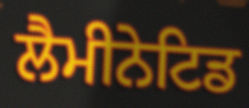
ਲੈਮੀਨੇਟਿਡ